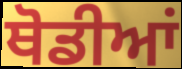
ਥੋਡੀਆਂ